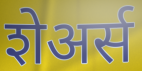
शेअर्स